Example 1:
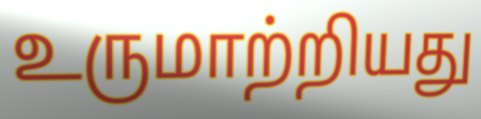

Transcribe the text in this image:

உருமாற்றியது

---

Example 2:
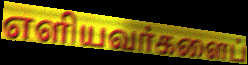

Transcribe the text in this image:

எளியவர்களைப்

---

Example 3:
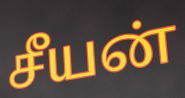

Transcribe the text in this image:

சீயன்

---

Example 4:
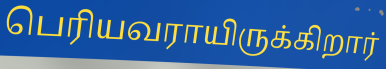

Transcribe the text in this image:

பெரியவராயிருக்கிறார்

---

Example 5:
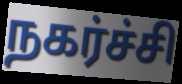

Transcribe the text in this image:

நகர்ச்சி